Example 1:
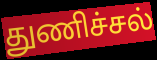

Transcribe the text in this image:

துணிச்சல்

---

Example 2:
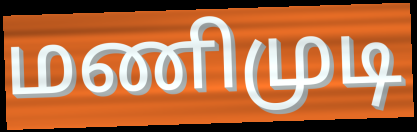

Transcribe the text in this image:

மணிமுடி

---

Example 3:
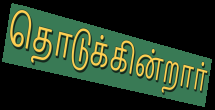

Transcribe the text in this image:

தொடுக்கின்றார்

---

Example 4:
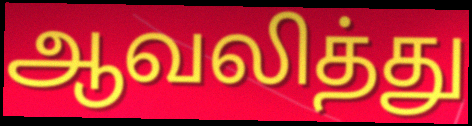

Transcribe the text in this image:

ஆவலித்து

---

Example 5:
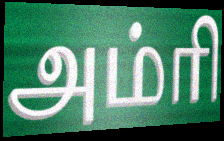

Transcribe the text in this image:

அம்ரி